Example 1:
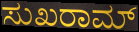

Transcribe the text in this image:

ಸುಖರಾಮ್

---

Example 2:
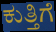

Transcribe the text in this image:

ಕುತ್ತಿಗೆ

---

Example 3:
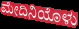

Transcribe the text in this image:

ಮೇದಿನಿಯೊಳು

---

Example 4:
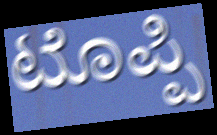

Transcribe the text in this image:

ಟೊಪ್ಪಿ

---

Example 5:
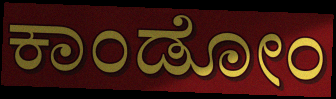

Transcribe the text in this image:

ಕಾಂಡೋಂ